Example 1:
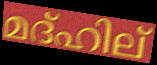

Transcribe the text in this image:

മദ്ഹില്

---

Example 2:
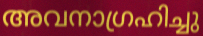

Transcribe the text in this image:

അവനാഗ്രഹിച്ചു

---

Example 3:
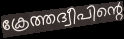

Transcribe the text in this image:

ക്രേത്തദ്വീപിന്റെ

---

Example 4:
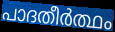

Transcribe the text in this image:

പാദതീർത്ഥം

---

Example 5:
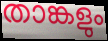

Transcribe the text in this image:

താങ്കളും